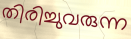
തിരിച്ചുവരുന്ന